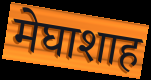
मेघाशाह